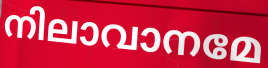
നിലാവാനമേ